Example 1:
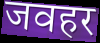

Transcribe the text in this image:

जवहर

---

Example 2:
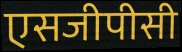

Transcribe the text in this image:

एसजीपीसी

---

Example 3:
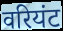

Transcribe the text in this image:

वरियंट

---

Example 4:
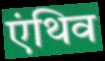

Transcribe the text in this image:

एंथिव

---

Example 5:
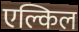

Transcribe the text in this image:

एल्किल